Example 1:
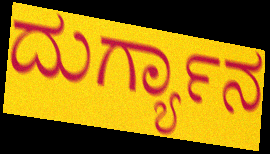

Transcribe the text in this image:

ದುರ್ಗ್ಯಾನ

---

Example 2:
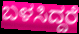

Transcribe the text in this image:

ಬಳಸಿದ್ದರೆ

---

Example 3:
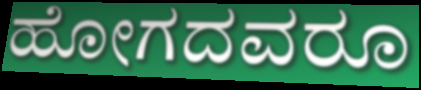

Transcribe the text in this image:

ಹೋಗದವರೂ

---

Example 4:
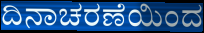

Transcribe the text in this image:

ದಿನಾಚರಣೆಯಿಂದ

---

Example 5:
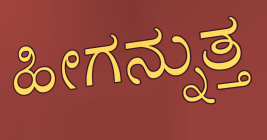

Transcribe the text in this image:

ಹೀಗನ್ನುತ್ತ